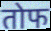
तोफ